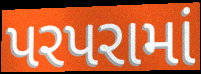
પરપરામાં